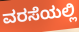
ವರಸೆಯಲ್ಲಿ